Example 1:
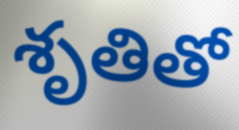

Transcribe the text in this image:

శృతితో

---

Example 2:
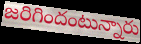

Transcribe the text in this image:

జరిగిందంటున్నారు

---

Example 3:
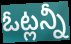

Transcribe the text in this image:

ఓట్లన్నీ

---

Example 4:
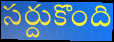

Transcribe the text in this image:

సర్దుకొంది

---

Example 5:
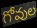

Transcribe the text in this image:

గోవుల